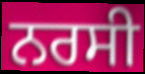
ਨਰਸੀ